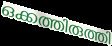
ഒക്കത്തിരുത്തി